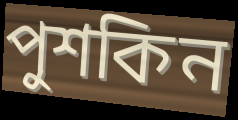
পুশকিন